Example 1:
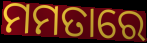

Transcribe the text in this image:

ମମତାରେ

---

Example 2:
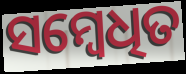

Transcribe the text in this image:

ସମ୍ବେଧିତ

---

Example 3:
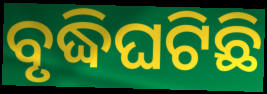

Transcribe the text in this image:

ବୃଦ୍ଧିଘଟିଛି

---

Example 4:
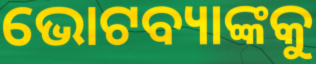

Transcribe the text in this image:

ଭୋଟବ୍ୟାଙ୍କକୁ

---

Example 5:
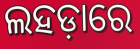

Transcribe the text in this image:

ଲହଡ଼ାରେ